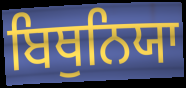
ਬਿਥੁਨਿਯਾ